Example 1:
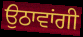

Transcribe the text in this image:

ਉਠਾਵਾਂਗੀ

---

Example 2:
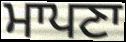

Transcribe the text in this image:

ਮਾਪਣਾ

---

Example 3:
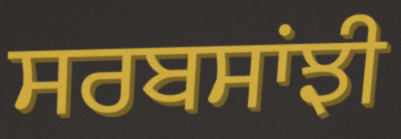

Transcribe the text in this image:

ਸਰਬਸਾਂਝੀ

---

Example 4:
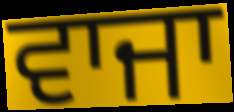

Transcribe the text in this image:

ਵਾਜਾ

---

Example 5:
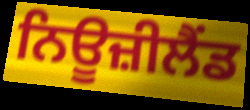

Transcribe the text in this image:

ਨਿਊਜ਼ੀਲੈਂਡ